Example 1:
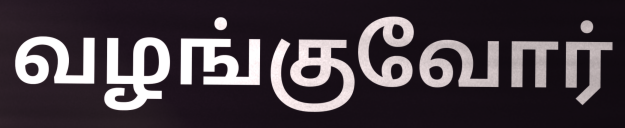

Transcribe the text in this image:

வழங்குவோர்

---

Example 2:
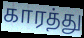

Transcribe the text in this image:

காரத்து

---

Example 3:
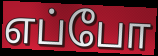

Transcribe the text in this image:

எப்போ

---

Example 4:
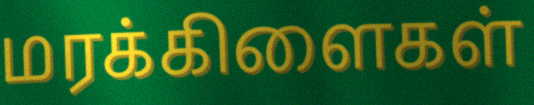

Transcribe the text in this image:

மரக்கிளைகள்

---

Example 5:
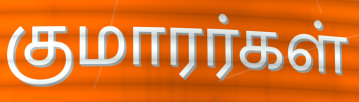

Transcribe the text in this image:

குமாரர்கள்